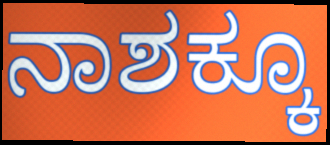
ನಾಶಕ್ಕೂ